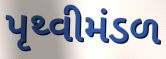
પૃથ્વીમંડળ